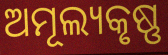
ଅମୂଲ୍ୟକୃଷ୍ଣ